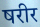
षरीर